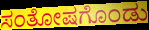
ಸಂತೋಷಗೊಂಡು